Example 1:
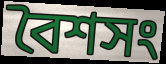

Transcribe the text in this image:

বৈশসং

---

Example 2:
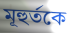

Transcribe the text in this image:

মূহুর্তকে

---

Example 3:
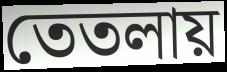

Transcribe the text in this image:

তেতলায়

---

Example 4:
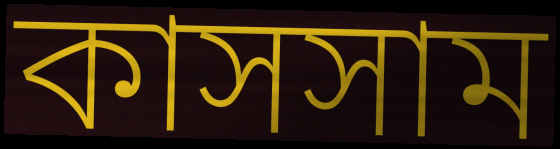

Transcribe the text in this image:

কাসসাম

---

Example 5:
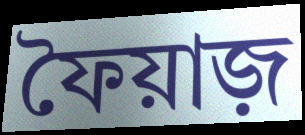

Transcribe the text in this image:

ফৈয়াজ়